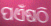
ପଏଁଷଠି